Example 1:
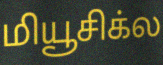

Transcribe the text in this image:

மியூசிக்ல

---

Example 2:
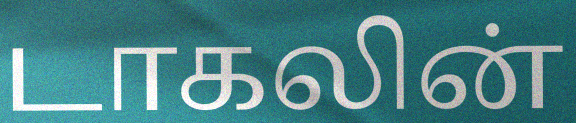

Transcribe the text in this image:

டாகலின்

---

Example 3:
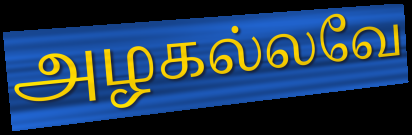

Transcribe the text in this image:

அழகல்லவே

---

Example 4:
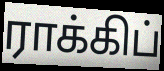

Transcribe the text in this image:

ராக்கிப்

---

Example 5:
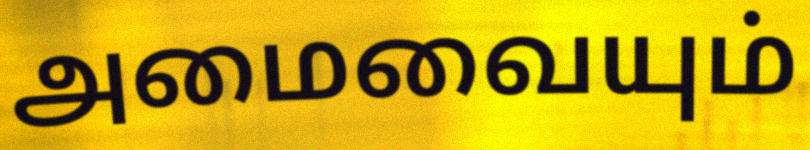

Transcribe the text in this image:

அமைவையும்